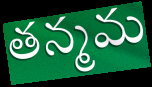
తన్మమ